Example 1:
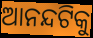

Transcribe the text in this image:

ଆନନ୍ଦଟିକୁ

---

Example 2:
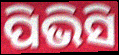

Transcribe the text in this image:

ପିଭିସି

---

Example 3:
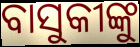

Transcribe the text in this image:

ବାସୁକୀଙ୍କୁ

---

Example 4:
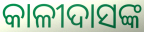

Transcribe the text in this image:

କାଳୀଦାସଙ୍କ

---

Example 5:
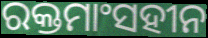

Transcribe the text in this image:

ରକ୍ତମାଂସହୀନ